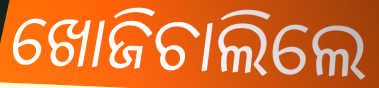
ଖୋଜିଚାଲିଲେ